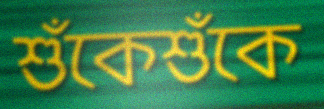
শুঁকেশুঁকে